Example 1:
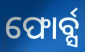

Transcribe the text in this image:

ଫୋର୍ବ୍ସ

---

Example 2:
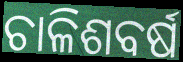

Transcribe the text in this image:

ଚାଳିଶବର୍ଷ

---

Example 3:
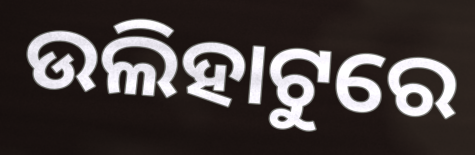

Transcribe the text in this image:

ଉଲିହାଟୁରେ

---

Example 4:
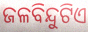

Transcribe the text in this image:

ଜଳବିନ୍ଦୁଟିଏ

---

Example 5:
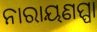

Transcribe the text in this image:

ନାରାୟଣପ୍ପା